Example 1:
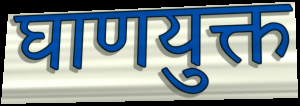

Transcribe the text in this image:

घाणयुक्त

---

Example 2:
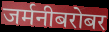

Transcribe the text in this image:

जर्मनीबरोबर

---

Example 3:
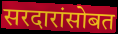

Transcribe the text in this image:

सरदारांसोबत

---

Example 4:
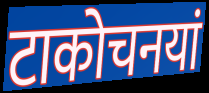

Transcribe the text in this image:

टाकोचनयां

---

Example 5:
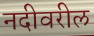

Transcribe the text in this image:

नदीवरील